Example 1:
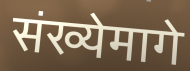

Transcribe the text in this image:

संख्येमागे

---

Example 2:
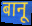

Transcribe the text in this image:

बानू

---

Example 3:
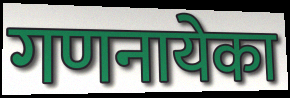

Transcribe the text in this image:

गणनायेका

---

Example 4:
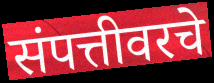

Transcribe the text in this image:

संपत्तीवरचे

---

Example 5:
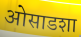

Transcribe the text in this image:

ओसाडशा